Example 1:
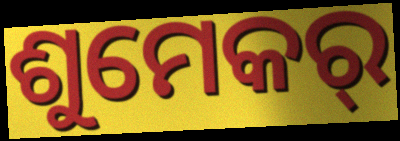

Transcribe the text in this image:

ଶୁମେକର୍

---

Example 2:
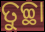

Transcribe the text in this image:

ତୁଚ୍ଛା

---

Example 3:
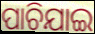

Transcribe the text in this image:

ପାଚିଯାଇ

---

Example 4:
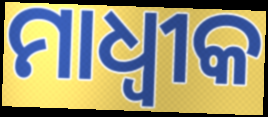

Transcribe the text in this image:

ମାଧ୍ୱୀକ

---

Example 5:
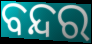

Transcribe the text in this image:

ବନ୍ଦର